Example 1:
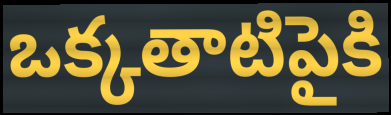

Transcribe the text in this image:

ఒక్కతాటిపైకి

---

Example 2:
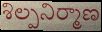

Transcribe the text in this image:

శిల్పనిర్మాణ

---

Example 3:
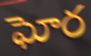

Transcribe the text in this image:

ఘోర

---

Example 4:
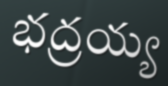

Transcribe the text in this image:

భద్రయ్య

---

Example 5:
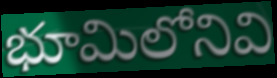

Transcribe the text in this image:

భూమిలోనివి